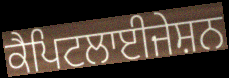
ਕੈਪਿਟਲਾਈਜੇਸ਼ਨ